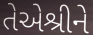
તેએશ્રીને